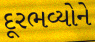
દૂરભવ્યોને